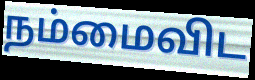
நம்மைவிட